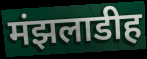
मंझलाडीह